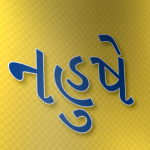
નહુષે